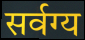
सर्वग्य